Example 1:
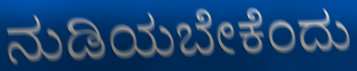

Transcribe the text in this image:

ನುಡಿಯಬೇಕೆಂದು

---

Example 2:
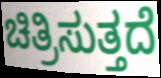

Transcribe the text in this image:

ಚಿತ್ರಿಸುತ್ತದೆ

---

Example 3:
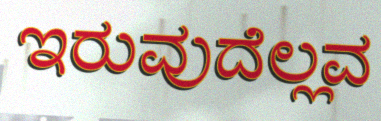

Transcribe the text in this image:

ಇರುವುದೆಲ್ಲವ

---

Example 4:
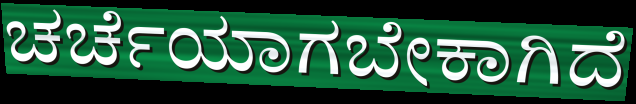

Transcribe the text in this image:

ಚರ್ಚೆಯಾಗಬೇಕಾಗಿದೆ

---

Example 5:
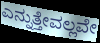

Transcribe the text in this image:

ಎನ್ನುತ್ತೇವಲ್ಲವೇ